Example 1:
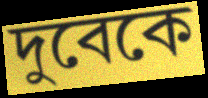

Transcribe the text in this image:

দুবেকে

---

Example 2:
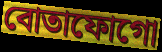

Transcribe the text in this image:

বোতাফোগো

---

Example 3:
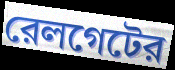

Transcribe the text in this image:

রেলগেটের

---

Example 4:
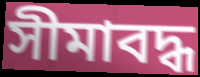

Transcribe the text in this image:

সীমাবদ্ধ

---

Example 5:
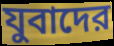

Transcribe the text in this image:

যুবাদের